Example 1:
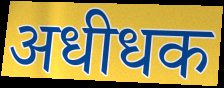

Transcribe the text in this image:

अधीधक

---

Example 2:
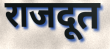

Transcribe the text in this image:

राजदूत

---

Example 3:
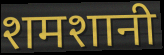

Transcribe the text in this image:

शमशानी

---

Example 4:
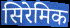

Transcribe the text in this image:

सिरेमिक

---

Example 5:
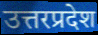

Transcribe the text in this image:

उत्तरप्रदेश